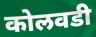
कोलवडी